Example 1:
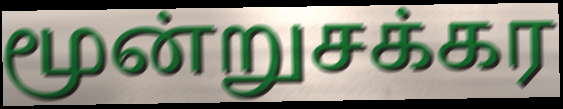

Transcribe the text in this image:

மூன்றுசக்கர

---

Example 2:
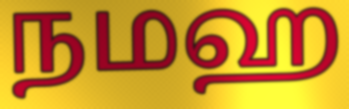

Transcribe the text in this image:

நமஹ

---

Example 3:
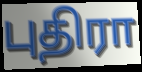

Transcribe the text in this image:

புதிரா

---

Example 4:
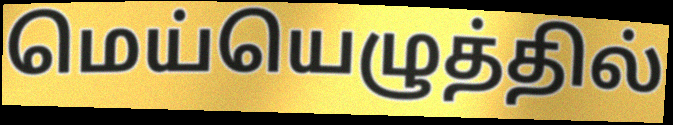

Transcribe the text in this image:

மெய்யெழுத்தில்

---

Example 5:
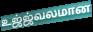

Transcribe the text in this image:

உஜ்ஜ்வலமான